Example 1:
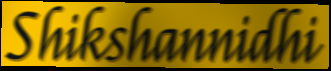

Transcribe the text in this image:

Shikshannidhi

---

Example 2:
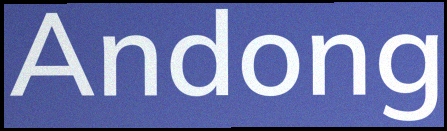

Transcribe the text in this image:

Andong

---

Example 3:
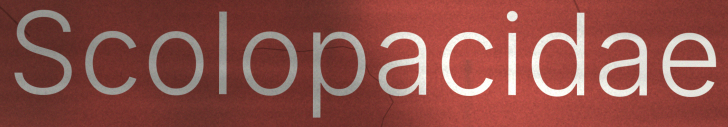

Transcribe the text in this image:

Scolopacidae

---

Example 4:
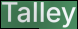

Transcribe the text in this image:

Talley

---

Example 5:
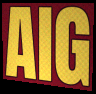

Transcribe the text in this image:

AIG